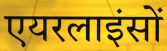
एयरलाइंसों